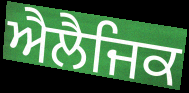
ਐਲੈਜਿਕ